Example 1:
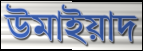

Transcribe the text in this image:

উমাইয়াদ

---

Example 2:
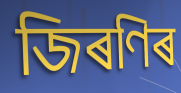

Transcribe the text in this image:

জিৰণিৰ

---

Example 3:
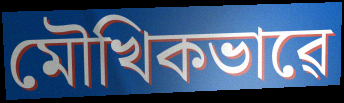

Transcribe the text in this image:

মৌখিকভাৱে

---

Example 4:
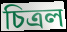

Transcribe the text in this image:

চিত্ৰল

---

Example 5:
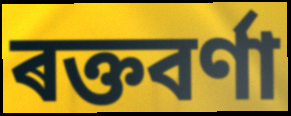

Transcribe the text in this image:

ৰক্তবৰ্ণা